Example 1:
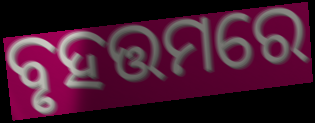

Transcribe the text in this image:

ବୃହତ୍ତମରେ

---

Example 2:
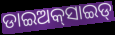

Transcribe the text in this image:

ଡାଇଅକ୍‌ସାଇଡ୍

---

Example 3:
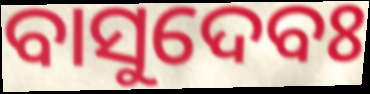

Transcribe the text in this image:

ବାସୁଦେବଃ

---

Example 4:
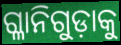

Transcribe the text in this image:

ଗ୍ଳାନିଗୁଡ଼ାକୁ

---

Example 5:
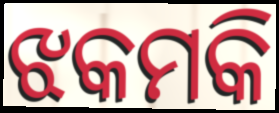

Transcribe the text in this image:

ଝକମକି